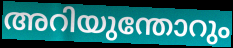
അറിയുന്തോറും